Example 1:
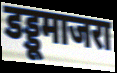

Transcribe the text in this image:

डड्डूमाजरा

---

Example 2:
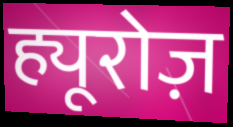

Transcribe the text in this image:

ह्यूरोज़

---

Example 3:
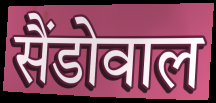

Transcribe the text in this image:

सैंडोवाल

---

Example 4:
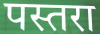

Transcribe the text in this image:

पस्तरा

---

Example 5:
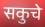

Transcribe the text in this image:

सकुचे